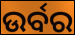
ଉର୍ବର